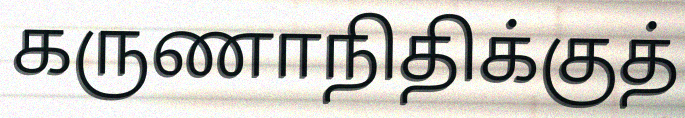
கருணாநிதிக்குத்